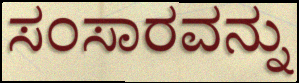
ಸಂಸಾರವನ್ನು